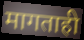
मागताही